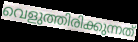
വെളുത്തിരിക്കുന്നത്